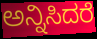
ಅನ್ನಿಸಿದರೆ